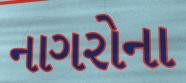
નાગરોના